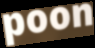
poon